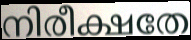
നിരീക്ഷതേ